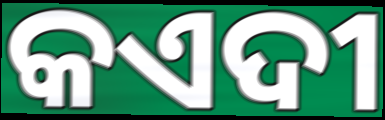
କଏଦୀ